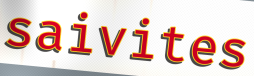
saivites